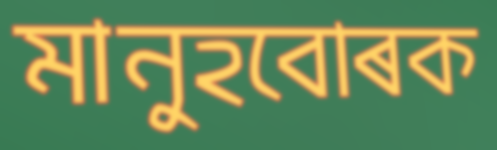
মানুহবোৰক